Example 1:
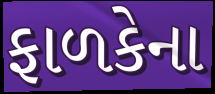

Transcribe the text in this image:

ફાળકેના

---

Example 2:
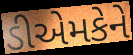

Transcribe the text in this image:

ડીએમકેને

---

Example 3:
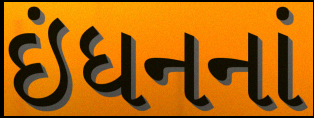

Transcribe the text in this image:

ઇંધનનાં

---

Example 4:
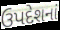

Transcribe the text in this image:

ઉપદેશનાં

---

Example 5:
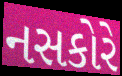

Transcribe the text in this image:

નસકોરે